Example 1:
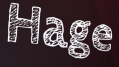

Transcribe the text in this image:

Hage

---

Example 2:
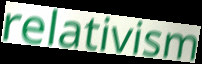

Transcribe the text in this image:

relativism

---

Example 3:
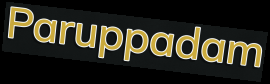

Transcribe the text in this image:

Paruppadam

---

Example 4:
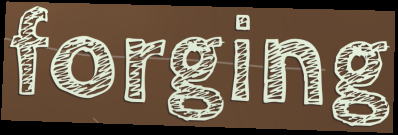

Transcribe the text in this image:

forging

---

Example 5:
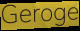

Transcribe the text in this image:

Geroge